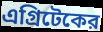
এগ্রিটেকের